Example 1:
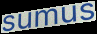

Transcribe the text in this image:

sumus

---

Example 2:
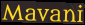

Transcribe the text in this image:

Mavani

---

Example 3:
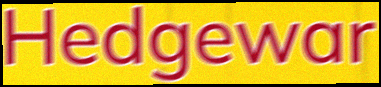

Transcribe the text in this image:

Hedgewar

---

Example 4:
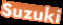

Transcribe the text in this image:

Suzuki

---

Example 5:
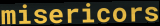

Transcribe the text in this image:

misericors